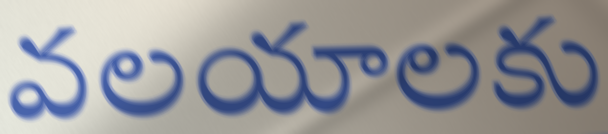
వలయాలకు